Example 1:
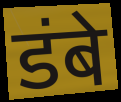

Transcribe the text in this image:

डंबे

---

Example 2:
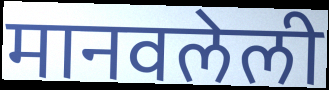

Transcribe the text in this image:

मानवलेली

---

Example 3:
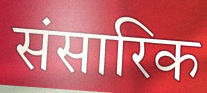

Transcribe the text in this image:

संसारिक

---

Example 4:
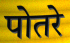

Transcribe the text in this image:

पोतरे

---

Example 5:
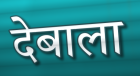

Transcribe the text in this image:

देबाला